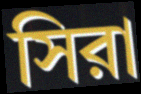
সিরা